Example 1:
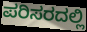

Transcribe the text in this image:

ಪರಿಸರದಲ್ಲಿ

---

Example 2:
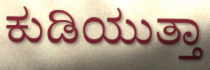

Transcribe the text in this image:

ಕುಡಿಯುತ್ತಾ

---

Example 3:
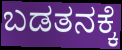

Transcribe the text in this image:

ಬಡತನಕ್ಕೆ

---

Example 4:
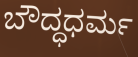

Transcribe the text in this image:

ಬೌದ್ಧಧರ್ಮ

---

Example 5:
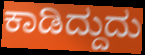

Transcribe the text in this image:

ಕಾಡಿದ್ದುದು